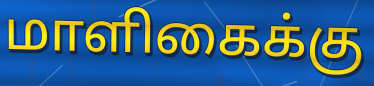
மாளிகைக்கு